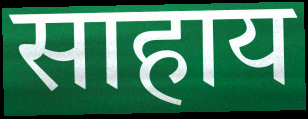
साहाय